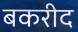
बकरीद